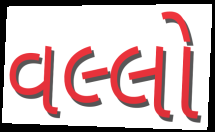
વલ્લો